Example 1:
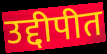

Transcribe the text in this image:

उद्दीपीत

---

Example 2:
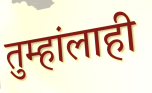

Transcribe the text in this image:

तुम्हांलाही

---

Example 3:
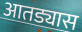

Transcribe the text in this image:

आतड्यास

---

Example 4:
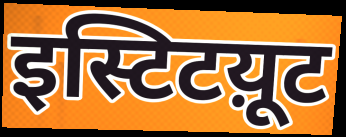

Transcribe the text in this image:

इस्टिटय़ूट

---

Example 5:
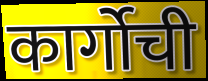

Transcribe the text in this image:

कार्गोची